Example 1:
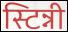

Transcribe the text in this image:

स्टिन्नी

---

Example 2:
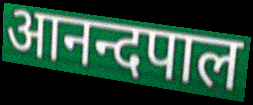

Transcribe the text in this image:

आनन्दपाल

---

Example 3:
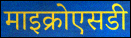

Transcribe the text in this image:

माइक्रोएसडी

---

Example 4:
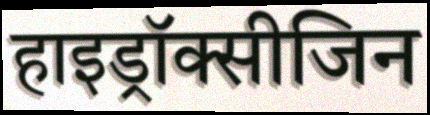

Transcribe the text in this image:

हाइड्रॉक्सीजिन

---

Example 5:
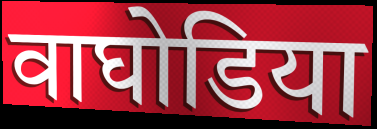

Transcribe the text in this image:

वाघोडिया